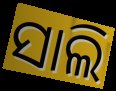
ସାଲି